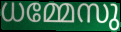
ധമ്മേസു